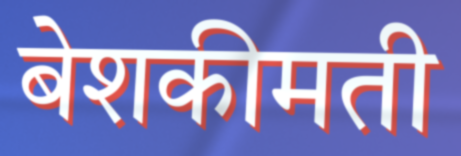
बेशकीमती